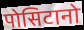
पोसिटानो